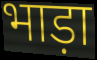
भाड़ा